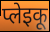
प्लेइकू